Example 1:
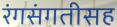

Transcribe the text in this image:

रंगसंगतीसह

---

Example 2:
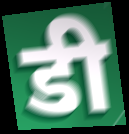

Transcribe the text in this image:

डी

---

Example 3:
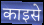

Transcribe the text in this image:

काइसे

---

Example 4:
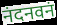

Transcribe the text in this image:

नंदनवनं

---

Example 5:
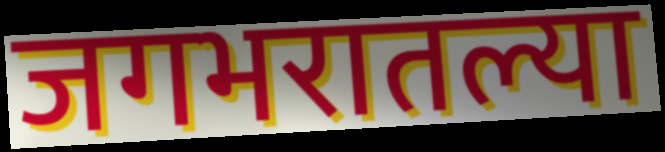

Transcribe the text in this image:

जगभरातल्या